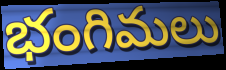
భంగిమలు